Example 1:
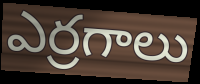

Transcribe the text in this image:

ఎర్రగాలు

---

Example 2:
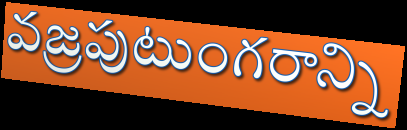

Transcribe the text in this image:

వజ్రపుటుంగరాన్ని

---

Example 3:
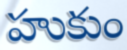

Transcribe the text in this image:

హుకుం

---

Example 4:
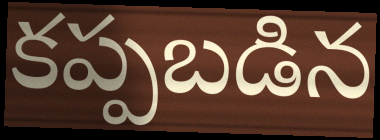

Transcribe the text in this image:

కప్పబడిన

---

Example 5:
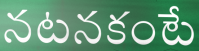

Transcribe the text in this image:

నటనకంటే